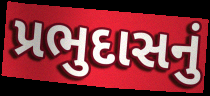
પ્રભુદાસનું